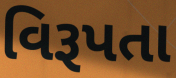
વિરૂપતા